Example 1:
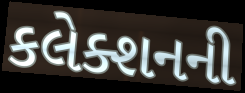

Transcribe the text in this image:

કલેક્શનની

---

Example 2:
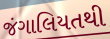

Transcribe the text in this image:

જંગાલિયતથી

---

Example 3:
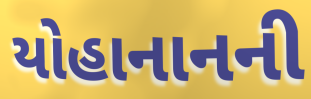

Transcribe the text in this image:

યોહાનાનની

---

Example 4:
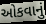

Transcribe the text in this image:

ઓકવાનું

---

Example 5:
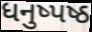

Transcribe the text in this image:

ધનુષ્પષ્ઠ